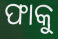
ଫାକୁ